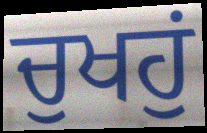
ਚੁਖਹੁਂ